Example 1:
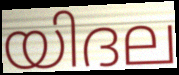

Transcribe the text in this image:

യിദല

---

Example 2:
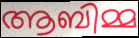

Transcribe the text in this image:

ആബിമ്മ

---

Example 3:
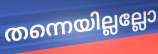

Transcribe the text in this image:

തന്നെയില്ലല്ലോ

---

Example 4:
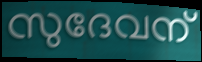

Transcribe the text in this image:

സുദേവന്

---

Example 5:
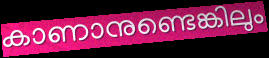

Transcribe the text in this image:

കാണാനുണ്ടെങ്കിലും